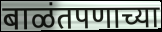
बाळंतपणाच्या